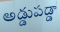
అడ్డుపడ్డా